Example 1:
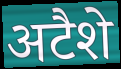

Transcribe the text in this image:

अटैशे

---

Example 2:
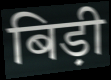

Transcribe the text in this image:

बिड़ी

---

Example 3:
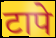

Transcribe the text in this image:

टापे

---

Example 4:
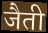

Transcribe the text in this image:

जैती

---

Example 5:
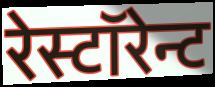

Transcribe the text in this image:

रेस्टॉरेन्ट